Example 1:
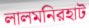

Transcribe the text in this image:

লালমনিরহাট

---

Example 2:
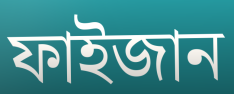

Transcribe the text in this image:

ফাইজান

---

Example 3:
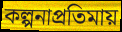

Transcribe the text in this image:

কল্পনাপ্রতিমায়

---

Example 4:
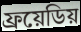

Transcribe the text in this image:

ফ্রয়েডিয়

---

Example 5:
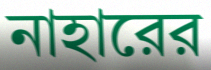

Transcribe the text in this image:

নাহারের